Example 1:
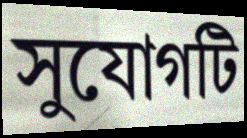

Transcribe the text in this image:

সুযোগটি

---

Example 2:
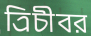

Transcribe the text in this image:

ত্রিচীবর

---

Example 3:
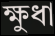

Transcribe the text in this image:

ক্ষুধা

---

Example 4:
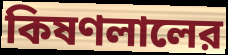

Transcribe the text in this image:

কিষণলালের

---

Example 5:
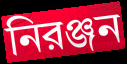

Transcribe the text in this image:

নিরঞ্জন